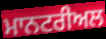
ਮਾਨਟਰੀਅਲ